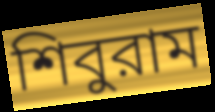
শিবুরাম